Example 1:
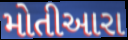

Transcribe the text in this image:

મોતીઆરા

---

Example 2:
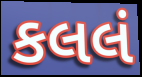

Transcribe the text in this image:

કલલં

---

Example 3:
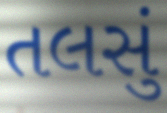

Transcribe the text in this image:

તલસું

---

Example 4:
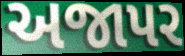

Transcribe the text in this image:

અજાપર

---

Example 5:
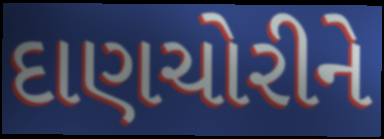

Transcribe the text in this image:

દાણચોરીને